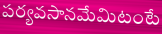
పర్యవసానమేమిటంటే